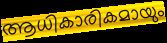
ആധികാരികമായും